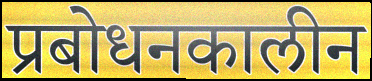
प्रबोधनकालीन